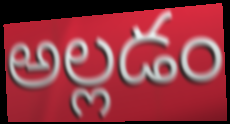
అల్లడం